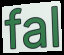
fal